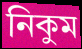
নিকুম